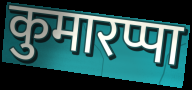
कुमारप्पा